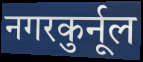
नगरकुर्नूल